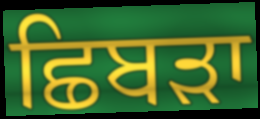
ਛਿਬੜਾ